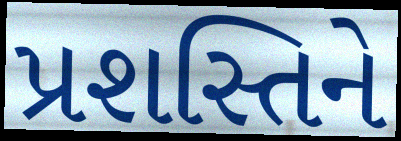
પ્રશસ્તિને